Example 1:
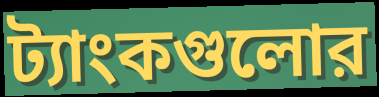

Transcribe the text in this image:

ট্যাংকগুলোর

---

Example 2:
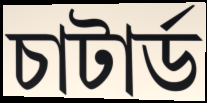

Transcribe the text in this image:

চাটার্ড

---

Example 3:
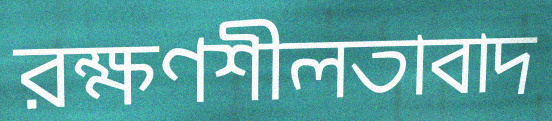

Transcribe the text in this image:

রক্ষণশীলতাবাদ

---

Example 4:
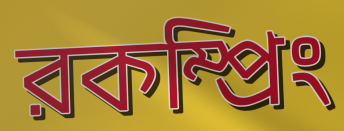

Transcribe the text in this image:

রকম্প্রিং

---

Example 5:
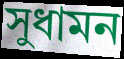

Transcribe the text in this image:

সুধামন